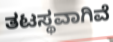
ತಟಸ್ಥವಾಗಿವೆ